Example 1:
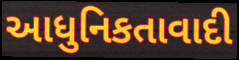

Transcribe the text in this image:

આધુનિકતાવાદી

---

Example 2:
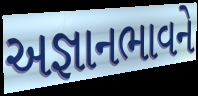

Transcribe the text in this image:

અજ્ઞાનભાવને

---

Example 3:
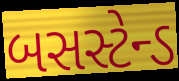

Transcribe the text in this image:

બસસ્ટેન્ડ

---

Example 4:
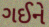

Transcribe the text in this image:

ગઈને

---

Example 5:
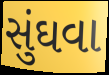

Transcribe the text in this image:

સુંઘવા